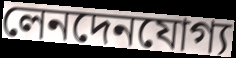
লেনদেনযোগ্য